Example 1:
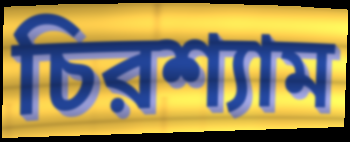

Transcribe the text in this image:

চিরশ্যাম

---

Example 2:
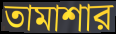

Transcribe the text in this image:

তামাশার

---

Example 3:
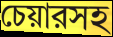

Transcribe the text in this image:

চেয়ারসহ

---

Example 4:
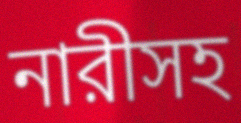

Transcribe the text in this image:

নারীসহ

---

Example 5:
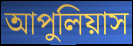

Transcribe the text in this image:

আপুলিয়াস